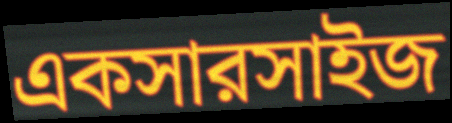
একসারসাইজ